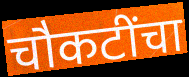
चौकटींचा